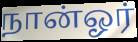
நான்ஓர்